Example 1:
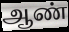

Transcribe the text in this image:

ஆண்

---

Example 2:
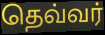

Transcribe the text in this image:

தெவ்வர்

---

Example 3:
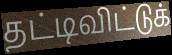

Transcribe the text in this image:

தட்டிவிட்டுக்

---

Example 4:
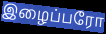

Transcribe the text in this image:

இழைப்பரோ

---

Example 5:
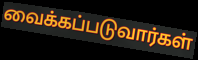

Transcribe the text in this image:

வைக்கப்படுவார்கள்